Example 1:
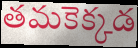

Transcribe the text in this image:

తమకెక్కడ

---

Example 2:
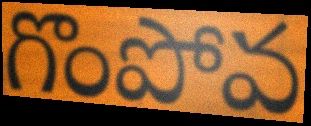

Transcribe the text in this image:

గొంపోవ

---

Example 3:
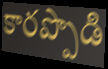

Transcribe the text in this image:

కారప్పొడి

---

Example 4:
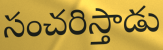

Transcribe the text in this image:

సంచరిస్తాడు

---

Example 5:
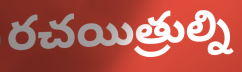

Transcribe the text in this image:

రచయిత్రుల్ని